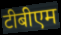
टीबीएम